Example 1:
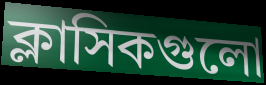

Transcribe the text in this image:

ক্লাসিকগুলো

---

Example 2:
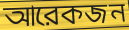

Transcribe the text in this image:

আরেকজন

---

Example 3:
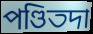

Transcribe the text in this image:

পণ্ডিতদা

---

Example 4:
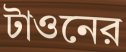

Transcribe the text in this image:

টাওনের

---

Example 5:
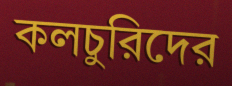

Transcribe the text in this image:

কলচুরিদের